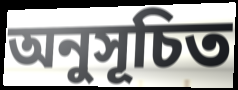
অনুসূচিত